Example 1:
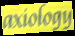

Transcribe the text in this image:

axiology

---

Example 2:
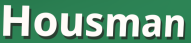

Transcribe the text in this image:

Housman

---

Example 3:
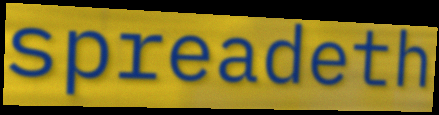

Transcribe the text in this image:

spreadeth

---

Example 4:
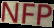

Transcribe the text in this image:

NFP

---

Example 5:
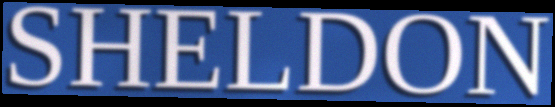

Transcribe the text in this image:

SHELDON